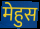
मेहुस